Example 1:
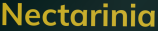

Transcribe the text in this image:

Nectarinia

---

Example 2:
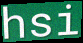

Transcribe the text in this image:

hsi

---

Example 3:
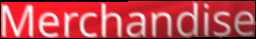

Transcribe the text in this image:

Merchandise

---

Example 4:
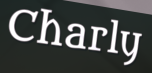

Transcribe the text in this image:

Charly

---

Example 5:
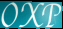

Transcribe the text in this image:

OXP